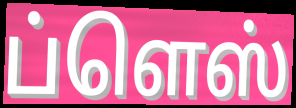
ப்ளெஸ்